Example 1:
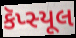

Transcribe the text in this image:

કૅપ્સ્યૂલ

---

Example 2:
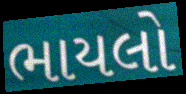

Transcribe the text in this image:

ભાયલો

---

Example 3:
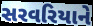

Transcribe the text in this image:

સરવરિયાને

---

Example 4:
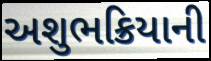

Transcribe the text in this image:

અશુભક્રિયાની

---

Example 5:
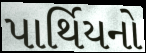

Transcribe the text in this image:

પાર્થિયનો